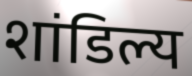
शांडिल्य